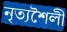
নৃত্যশৈলী